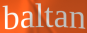
baltan